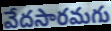
వేదసారమగు